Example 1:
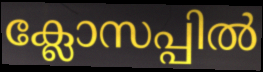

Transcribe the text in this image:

ക്ലോസപ്പിൽ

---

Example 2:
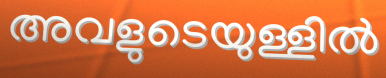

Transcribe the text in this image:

അവളുടെയുള്ളിൽ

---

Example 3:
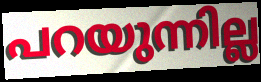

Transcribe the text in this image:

പറയുന്നില്ല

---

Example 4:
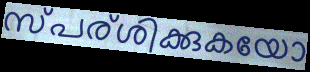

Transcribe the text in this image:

സ്പര്ശിക്കുകയോ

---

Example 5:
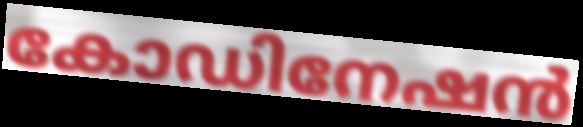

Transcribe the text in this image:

കോഡിനേഷൻ